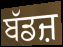
ਬੱਡਜ਼